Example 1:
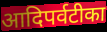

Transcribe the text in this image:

आदिपर्वटीका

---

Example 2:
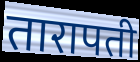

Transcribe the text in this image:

तारापती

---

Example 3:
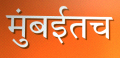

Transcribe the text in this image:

मुंबईतच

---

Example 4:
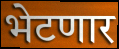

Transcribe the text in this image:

भेटणार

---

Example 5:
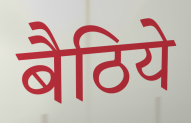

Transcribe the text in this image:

बैठिये